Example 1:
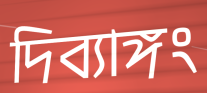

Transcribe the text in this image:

দিব্যাঙ্গং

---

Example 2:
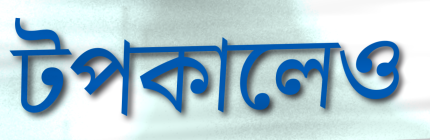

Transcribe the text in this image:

টপকালেও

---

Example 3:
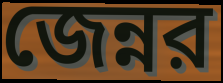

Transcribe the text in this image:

জেন্নর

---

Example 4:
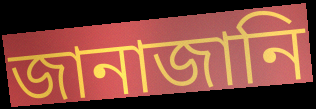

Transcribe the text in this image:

জানাজানি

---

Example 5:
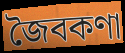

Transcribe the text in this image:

জৈবকণা